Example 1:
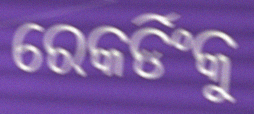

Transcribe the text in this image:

ରେକର୍ଡିଂକୁ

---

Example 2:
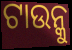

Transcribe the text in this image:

ଟାଉନ୍କୁ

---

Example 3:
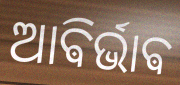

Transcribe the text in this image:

ଆଵିର୍ଭାଵ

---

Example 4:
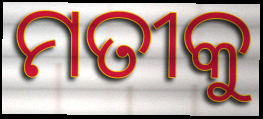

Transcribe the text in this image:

ମତୀକୁ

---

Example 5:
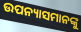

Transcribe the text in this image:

ଉପନ୍ୟାସମାନଙ୍କୁ